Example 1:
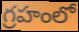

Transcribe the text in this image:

గ్రహంలో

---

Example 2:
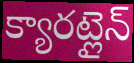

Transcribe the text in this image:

క్యారట్లైన్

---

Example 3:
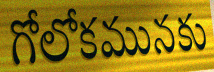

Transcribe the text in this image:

గోలోకమునకు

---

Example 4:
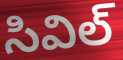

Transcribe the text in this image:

సివిల్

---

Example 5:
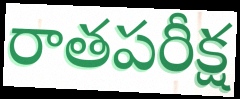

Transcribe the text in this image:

రాతపరీక్ష